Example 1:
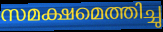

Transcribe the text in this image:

സമക്ഷമെത്തിച്ചു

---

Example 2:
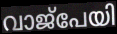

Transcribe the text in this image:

വാജ്പേയി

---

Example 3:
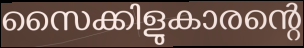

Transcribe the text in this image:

സൈക്കിളുകാരന്റെ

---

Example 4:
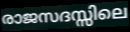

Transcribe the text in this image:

രാജസദസ്സിലെ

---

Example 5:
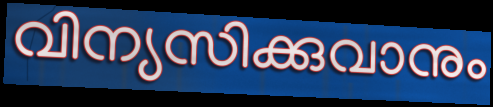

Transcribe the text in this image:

വിന്യസിക്കുവാനും